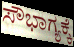
ಸೌಭಾಗ್ಯಕ್ಕೆ